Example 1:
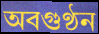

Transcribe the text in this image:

অবগুণ্ঠন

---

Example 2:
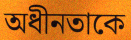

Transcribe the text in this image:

অধীনতাকে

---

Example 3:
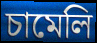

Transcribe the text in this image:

চামেলি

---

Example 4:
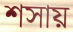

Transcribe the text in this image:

শসায়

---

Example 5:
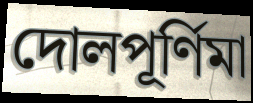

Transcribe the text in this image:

দোলপূর্ণিমা